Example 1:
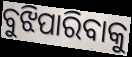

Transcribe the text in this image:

ବୁଝିପାରିବାକୁ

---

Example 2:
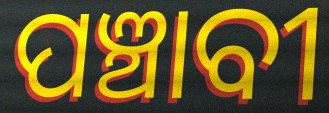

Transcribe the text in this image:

ପଞ୍ଚାବୀ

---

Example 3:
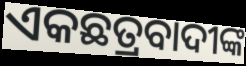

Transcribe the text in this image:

ଏକଛତ୍ରବାଦୀଙ୍କ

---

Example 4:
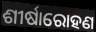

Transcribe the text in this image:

ଶୀର୍ଷାରୋହଣ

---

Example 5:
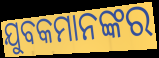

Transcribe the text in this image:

ଯୁବକମାନଙ୍କର